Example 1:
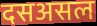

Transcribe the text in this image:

दसअसल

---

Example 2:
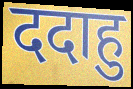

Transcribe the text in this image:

ददाहु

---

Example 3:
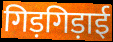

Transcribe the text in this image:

गिड़गिड़ाई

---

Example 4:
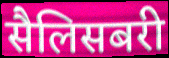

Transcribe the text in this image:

सैलिसबरी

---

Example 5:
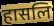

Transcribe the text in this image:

हासलि